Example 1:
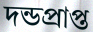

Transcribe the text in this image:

দন্ডপ্রাপ্ত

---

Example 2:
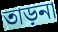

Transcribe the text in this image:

তাড়না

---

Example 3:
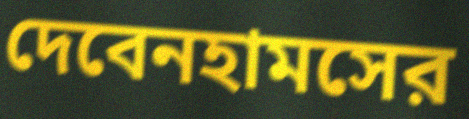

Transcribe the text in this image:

দেবেনহামসের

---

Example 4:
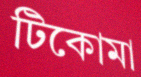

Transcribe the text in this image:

টিকোমা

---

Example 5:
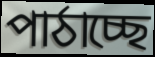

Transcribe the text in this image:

পাঠাচ্ছে